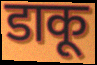
डाकू